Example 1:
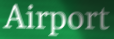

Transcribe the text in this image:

Airport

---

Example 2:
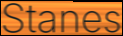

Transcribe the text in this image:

Stanes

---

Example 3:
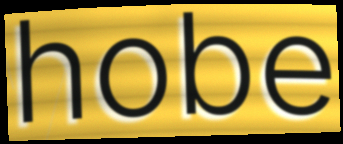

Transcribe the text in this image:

hobe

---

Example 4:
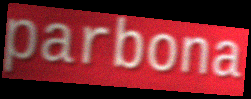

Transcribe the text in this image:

parbona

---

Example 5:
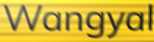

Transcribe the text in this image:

Wangyal